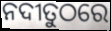
ନଦୀତୁଠରେ